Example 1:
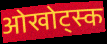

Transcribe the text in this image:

ओखोट्स्क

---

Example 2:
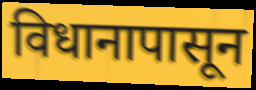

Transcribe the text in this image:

विधानापासून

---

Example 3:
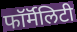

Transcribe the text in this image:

फॉर्मॅलिटी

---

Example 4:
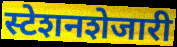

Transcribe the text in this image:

स्टेशनशेजारी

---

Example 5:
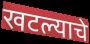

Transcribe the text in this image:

खटल्याचे